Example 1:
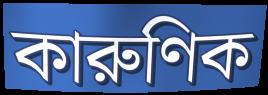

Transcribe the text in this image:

কারুণিক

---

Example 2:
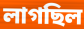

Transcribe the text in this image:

লাগছিল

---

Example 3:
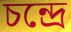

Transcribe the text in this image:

চন্দ্রে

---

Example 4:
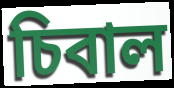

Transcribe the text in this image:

চিবাল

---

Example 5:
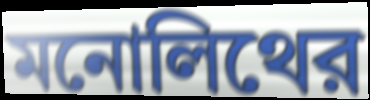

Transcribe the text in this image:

মনোলিথের